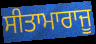
ਸੀਤਾਮਾਰਾਜੂ